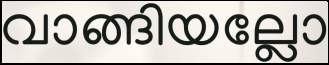
വാങ്ങിയല്ലോ